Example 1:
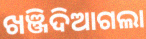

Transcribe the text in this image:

ଖଞ୍ଜିଦିଆଗଲା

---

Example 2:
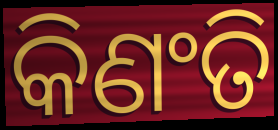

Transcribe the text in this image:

କିଣଂତି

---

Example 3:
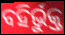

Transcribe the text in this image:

ବହିର୍ଭୁକ୍ତ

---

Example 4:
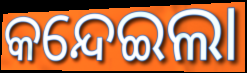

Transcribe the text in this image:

କନ୍ଦେଇଲା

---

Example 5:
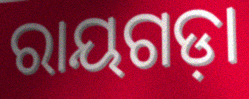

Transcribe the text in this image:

ରାୟଗଡ଼ା